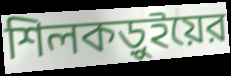
শিলকড়ুইয়ের